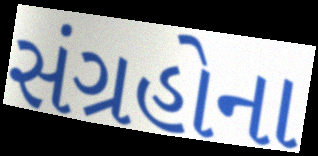
સંગ્રહોના